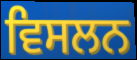
ਵਿਸਲਨ